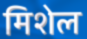
मिशेल